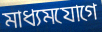
মাধ্যমযোগে